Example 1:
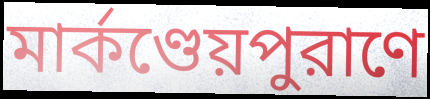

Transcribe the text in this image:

মার্কণ্ডেয়পুরাণে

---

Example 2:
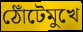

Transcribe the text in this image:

ঠোঁটেমুখে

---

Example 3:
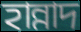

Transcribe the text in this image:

হান্নাদ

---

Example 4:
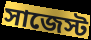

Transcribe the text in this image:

সাজেস্ট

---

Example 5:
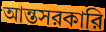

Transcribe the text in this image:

আন্তসরকারি